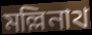
মল্লিনাথ